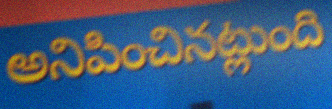
అనిపించినట్లుంది